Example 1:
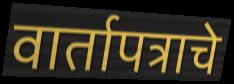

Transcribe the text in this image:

वार्तापत्राचे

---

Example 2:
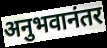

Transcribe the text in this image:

अनुभवानंतर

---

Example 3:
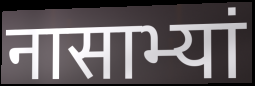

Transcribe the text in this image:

नासाभ्यां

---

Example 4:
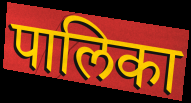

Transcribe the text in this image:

पालिका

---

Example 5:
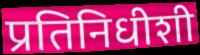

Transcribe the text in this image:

प्रतिनिधीशी